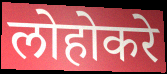
लोहोकरे